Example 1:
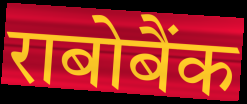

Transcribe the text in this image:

राबोबैंक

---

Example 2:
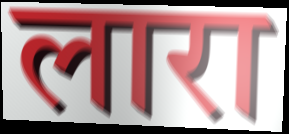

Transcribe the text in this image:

लारा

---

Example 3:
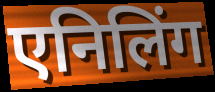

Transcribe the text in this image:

एनिलिंग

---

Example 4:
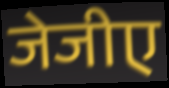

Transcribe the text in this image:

जेजीए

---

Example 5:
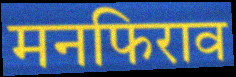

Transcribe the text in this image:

मनफिराव